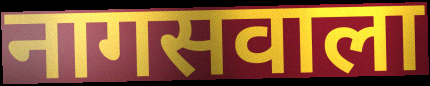
नागसवाला